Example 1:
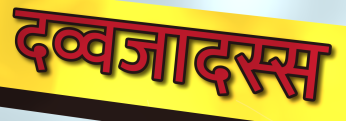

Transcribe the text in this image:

दव्वजादस्स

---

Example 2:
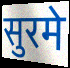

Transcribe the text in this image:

सुरमे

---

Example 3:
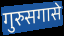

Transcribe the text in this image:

गुरुसगासे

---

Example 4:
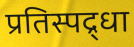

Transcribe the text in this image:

प्रतिस्पद्र्धा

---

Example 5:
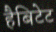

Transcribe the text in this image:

हैबिटेट